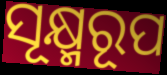
ସୂକ୍ଷ୍ମରୂପ